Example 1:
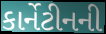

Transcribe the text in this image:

કાર્નેટીનની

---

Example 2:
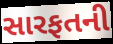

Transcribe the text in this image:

સારફતની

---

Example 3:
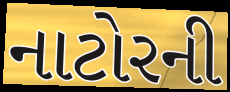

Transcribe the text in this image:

નાટોરની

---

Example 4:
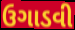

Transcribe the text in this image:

ઉગાડવી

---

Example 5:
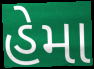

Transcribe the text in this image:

હેમા